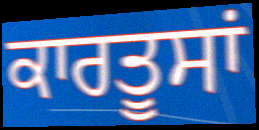
ਕਾਰਤੂਸਾਂ